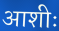
आशीः